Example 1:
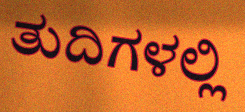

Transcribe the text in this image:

ತುದಿಗಳಲ್ಲಿ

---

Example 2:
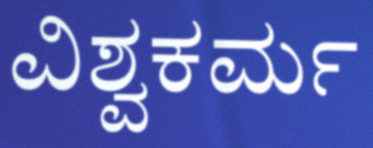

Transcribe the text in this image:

ವಿಶ್ವಕರ್ಮ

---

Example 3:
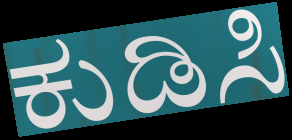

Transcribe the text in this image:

ಕುಡಿಸಿ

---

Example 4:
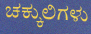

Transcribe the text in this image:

ಚಕ್ಕುಲಿಗಳು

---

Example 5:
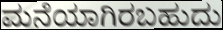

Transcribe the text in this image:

ಮನೆಯಾಗಿರಬಹುದು